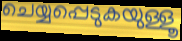
ചെയ്യപ്പെടുകയുള്ളൂ